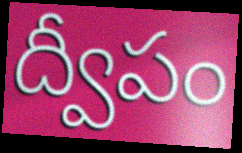
ద్వీపం